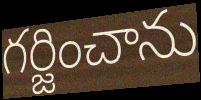
గర్జించాను